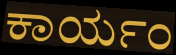
ಕಾರ್ಯಂ